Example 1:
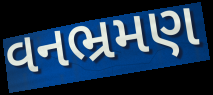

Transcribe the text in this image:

વનભ્રમણ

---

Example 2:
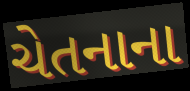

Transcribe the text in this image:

ચેતનાના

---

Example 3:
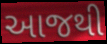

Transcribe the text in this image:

આજથી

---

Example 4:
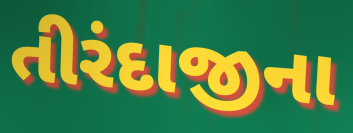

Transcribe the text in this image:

તીરંદાજીના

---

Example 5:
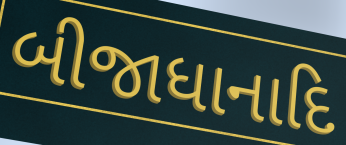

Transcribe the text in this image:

બીજાધાનાદિ